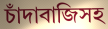
চাঁদাবাজিসহ